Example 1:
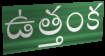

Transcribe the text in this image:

ఉత్తంక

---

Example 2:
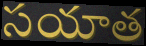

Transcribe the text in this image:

సయాత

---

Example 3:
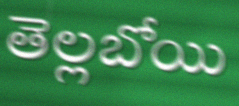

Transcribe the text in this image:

తెల్లబోయి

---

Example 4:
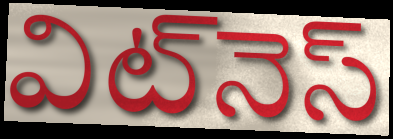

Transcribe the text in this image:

విట్‌నెస్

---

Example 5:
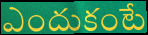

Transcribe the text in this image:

ఎందుకంటే